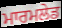
ਮਾਰਮਲੇਡ